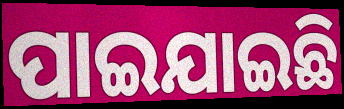
ପାଇଯାଇଛି